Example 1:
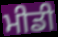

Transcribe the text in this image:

ਮੀਡੀ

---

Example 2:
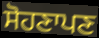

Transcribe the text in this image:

ਸੋਹਣਾਪਣ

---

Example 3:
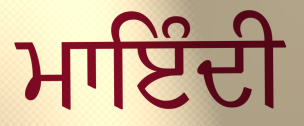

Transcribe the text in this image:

ਮਾਇੰਦੀ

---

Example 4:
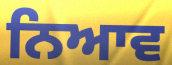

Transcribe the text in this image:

ਨਿਆਵ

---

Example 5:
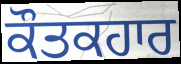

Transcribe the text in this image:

ਕੌਤਕਹਾਰ